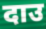
दाउ